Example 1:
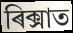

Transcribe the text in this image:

ৰিক্সাত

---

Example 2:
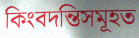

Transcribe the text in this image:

কিংবদন্তিসমূহত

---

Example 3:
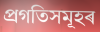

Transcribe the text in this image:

প্ৰগতিসমূহৰ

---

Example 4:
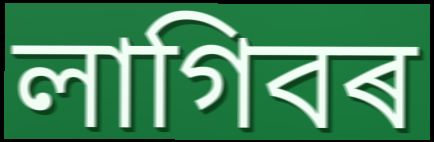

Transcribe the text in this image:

লাগিবৰ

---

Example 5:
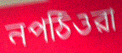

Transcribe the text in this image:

নপঠিওৱা